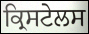
ਕ੍ਰਿਸਟੇਲਸ